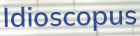
Idioscopus